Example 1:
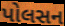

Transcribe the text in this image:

પોલસન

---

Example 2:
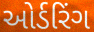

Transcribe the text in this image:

ઓર્ડરિંગ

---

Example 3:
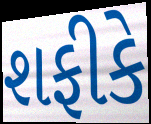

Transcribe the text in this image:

શફીકે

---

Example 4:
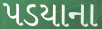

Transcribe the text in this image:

પડયાના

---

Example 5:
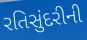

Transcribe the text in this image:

રતિસુંદરીની